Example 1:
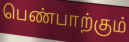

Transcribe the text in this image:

பெண்பாற்கும்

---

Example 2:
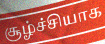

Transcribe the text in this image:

சூழ்ச்சியாக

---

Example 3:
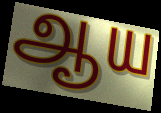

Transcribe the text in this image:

ஆய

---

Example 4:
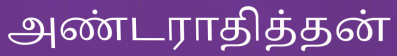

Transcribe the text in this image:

அண்டராதித்தன்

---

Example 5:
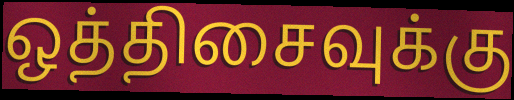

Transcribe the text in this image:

ஒத்திசைவுக்கு